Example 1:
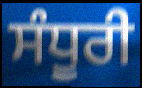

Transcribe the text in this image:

ਸੰਧੂਰੀ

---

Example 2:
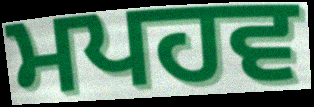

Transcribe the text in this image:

ਮਪਹਵ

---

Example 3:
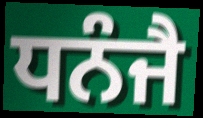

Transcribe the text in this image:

ਧਨੰਜੈ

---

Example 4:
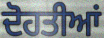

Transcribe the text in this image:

ਦੋਹਤੀਆਂ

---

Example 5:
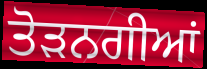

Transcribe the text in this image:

ਤੋੜਨਗੀਆਂ